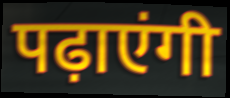
पढ़ाएंगी